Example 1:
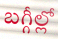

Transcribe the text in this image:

బగ్గీల్లో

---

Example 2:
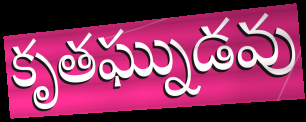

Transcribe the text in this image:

కృతఘ్నుడవు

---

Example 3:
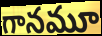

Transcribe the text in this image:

గానమూ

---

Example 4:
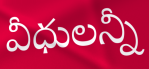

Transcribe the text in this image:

వీధులన్నీ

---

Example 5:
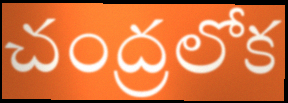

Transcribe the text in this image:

చంద్రలోక